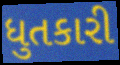
ધુતકારી